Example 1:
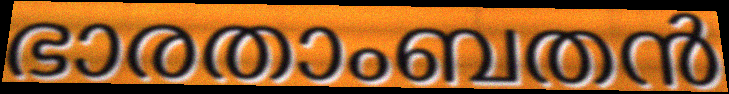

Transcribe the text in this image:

ഭാരതാംബതൻ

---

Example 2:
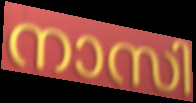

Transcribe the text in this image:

നാസി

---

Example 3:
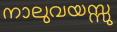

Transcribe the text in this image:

നാലുവയസ്സു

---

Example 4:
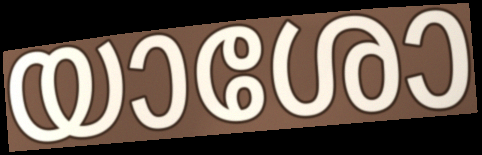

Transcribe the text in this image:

യാശോ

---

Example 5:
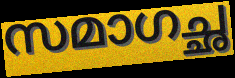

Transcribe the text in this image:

സമാഗച്ഛ